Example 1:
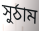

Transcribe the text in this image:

সুঠাম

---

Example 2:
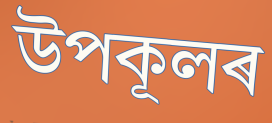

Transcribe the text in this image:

উপকূলৰ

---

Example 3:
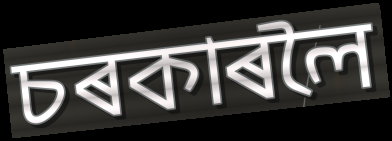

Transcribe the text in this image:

চৰকাৰলৈ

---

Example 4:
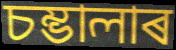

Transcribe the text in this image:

চম্ভালাৰ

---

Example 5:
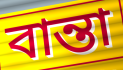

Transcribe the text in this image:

বান্তা